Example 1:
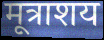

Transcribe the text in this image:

मूत्राशय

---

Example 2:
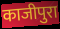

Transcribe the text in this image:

काजीपुरा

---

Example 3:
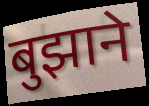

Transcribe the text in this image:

बुझाने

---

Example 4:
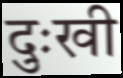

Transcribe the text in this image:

दुःखी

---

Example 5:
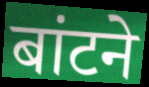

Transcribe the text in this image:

बांटने